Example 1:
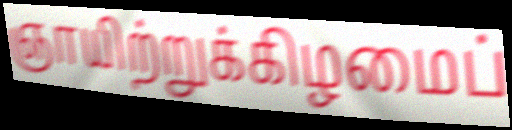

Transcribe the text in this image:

ஞாயிற்றுக்கிழமைப்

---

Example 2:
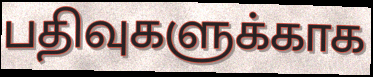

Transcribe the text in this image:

பதிவுகளுக்காக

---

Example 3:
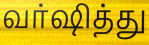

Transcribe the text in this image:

வர்ஷித்து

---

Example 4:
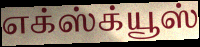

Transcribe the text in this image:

எக்ஸ்க்யூஸ்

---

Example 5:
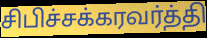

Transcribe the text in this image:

சிபிச்சக்கரவர்த்தி